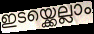
ഇടയ്ക്കെല്ലാം